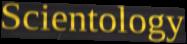
Scientology